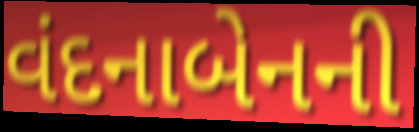
વંદનાબેનની